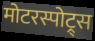
मोटरस्पोट्र्स